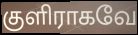
குளிராகவே